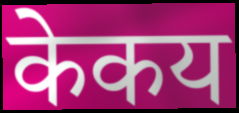
केकय